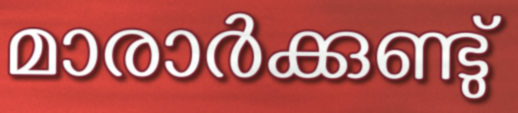
മാരാർക്കുണ്ടു്